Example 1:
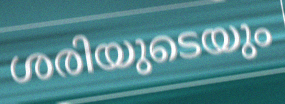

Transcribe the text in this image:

ശരിയുടെയും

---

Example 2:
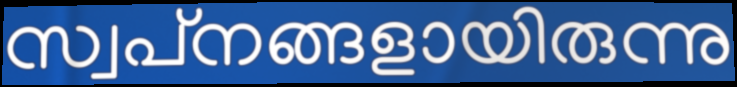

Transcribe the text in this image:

സ്വപ്‌നങ്ങളായിരുന്നു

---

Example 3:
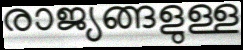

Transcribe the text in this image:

രാജ്യങ്ങളുള്ള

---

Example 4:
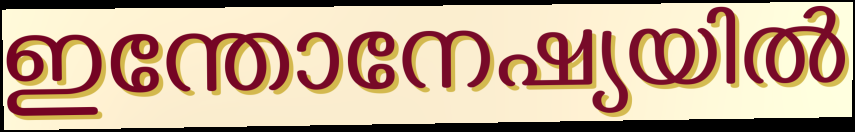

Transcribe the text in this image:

ഇന്തോനേഷ്യയിൽ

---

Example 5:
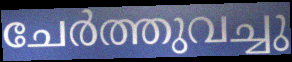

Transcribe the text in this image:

ചേർത്തുവച്ചു